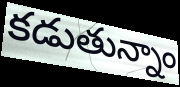
కడుతున్నాం